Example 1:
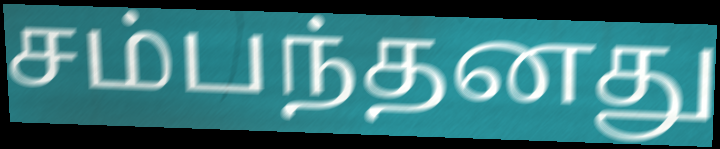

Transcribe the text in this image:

சம்பந்தனது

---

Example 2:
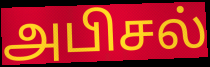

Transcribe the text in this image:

அபிசல்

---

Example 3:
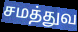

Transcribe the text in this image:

சமத்துவ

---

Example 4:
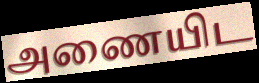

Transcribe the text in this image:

அணையிட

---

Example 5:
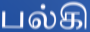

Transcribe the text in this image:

பல்கி